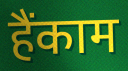
हैंकाम